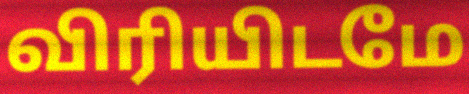
விரியிடமே